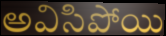
అవిసిపోయి